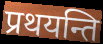
प्रथयन्ति